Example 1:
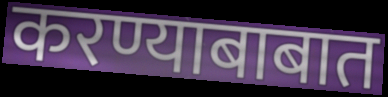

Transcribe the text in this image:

करण्याबाबात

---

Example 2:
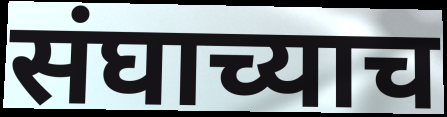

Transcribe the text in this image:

संघाच्याच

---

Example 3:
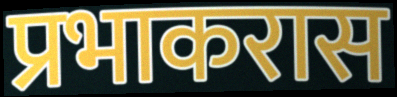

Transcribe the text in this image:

प्रभाकरास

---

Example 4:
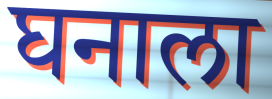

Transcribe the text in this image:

घनाला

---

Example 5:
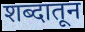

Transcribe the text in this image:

शब्दातून